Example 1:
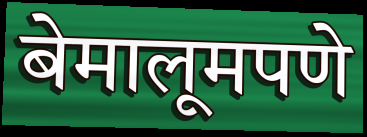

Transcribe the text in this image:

बेमालूमपणे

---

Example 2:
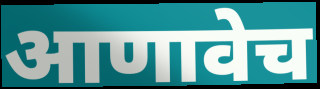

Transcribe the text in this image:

आणावेच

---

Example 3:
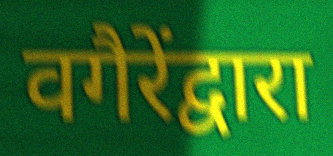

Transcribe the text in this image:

वगैरेंद्वारा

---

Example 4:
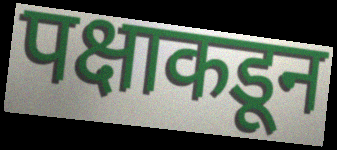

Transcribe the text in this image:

पक्षाकडून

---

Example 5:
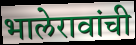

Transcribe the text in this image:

भालेरावांची